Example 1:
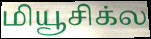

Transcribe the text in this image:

மியூசிக்ல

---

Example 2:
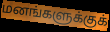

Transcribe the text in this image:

மனங்களுக்குக்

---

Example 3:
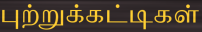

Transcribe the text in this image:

புற்றுக்கட்டிகள்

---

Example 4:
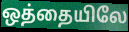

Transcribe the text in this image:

ஒத்தையிலே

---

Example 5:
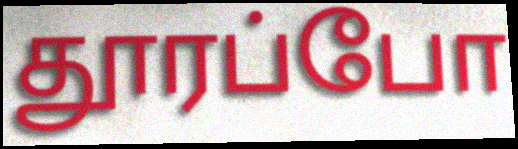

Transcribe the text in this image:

தூரப்போ